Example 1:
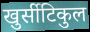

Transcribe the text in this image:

खुर्सीटिकुल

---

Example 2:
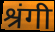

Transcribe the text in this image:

श्रंगी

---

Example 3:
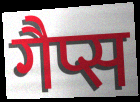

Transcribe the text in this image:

गैप्स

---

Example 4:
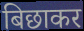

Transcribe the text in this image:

बिछाकर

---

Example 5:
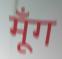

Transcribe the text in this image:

मूँग